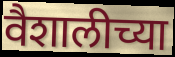
वैशालीच्या